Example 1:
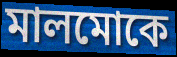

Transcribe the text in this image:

মালমোকে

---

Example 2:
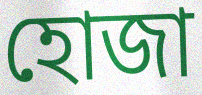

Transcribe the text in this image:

হোজা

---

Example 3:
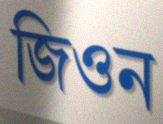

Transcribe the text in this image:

জিওন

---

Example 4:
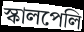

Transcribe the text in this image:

স্কালপেলি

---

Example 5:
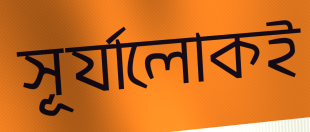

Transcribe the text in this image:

সূর্যালোকই